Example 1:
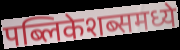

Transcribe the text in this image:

पब्लिकेशब्समध्ये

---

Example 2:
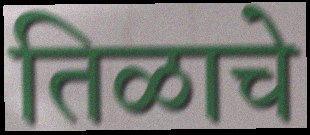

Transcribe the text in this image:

तिळाचे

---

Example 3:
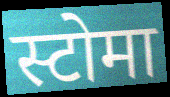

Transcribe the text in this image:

स्टोमा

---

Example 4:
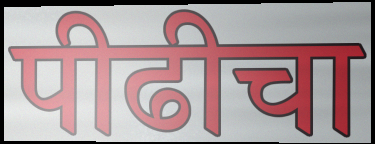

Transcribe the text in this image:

पीढीचा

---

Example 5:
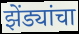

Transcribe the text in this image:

झेंड्यांचा